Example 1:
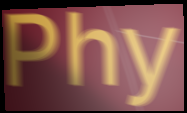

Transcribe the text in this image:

Phy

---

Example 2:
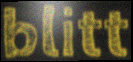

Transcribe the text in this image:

blitt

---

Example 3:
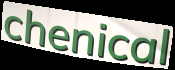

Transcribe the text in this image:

chenical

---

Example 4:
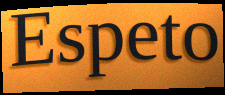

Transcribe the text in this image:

Espeto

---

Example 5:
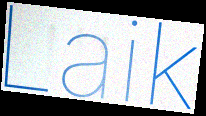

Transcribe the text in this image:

Laik